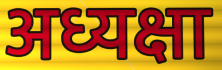
अध्यक्षा